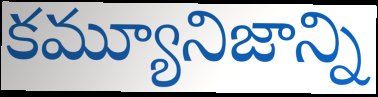
కమ్యూనిజాన్ని